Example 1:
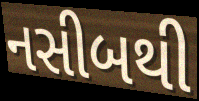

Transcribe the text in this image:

નસીબથી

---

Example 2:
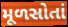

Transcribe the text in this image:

મૂળસોતાં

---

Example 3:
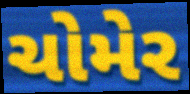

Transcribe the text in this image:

ચોમેર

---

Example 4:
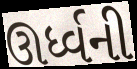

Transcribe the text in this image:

ઊર્ધ્વની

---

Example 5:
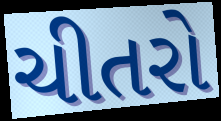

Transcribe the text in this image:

ચીતરો